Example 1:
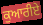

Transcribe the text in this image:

ਕੁਆਰੀਏ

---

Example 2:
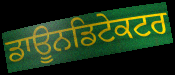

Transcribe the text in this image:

ਡਾਊਨਡਿਟੇਕਟਰ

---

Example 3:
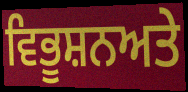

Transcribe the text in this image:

ਵਿਭੂਸ਼ਨਅਤੇ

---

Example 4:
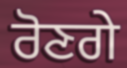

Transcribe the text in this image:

ਰੋਣਗੇ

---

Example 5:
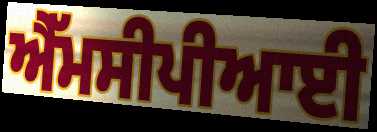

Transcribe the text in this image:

ਐੱਮਸੀਪੀਆਈ